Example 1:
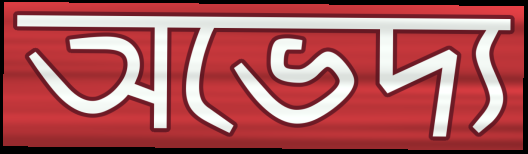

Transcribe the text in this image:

অভেদ্য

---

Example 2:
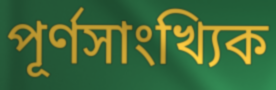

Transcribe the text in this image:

পূর্ণসাংখ্যিক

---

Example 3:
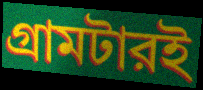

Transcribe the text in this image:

গ্রামটারই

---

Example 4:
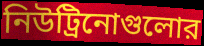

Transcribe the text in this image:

নিউট্রিনোগুলোর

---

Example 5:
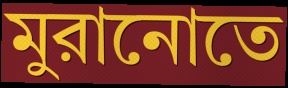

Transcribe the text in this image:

মুরানোতে